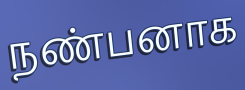
நண்பனாக